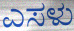
ಎಸಳು